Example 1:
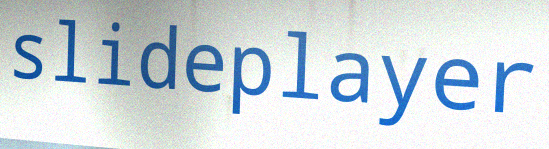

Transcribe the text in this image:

slideplayer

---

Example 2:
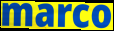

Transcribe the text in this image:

marco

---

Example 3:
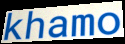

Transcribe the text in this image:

khamo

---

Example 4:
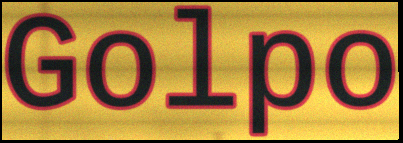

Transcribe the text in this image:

Golpo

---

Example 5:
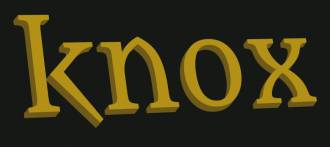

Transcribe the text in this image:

knox